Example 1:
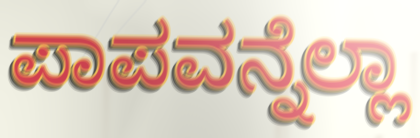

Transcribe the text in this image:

ಪಾಪವನ್ನೆಲ್ಲಾ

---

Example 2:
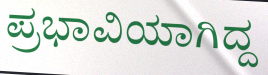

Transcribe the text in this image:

ಪ್ರಭಾವಿಯಾಗಿದ್ದ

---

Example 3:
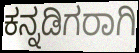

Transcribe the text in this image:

ಕನ್ನಡಿಗರಾಗಿ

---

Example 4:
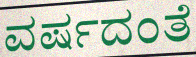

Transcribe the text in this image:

ವರ್ಷದಂತೆ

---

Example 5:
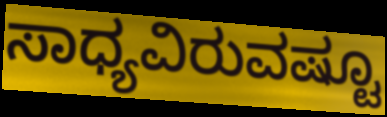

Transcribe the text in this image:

ಸಾಧ್ಯವಿರುವಷ್ಟೂ